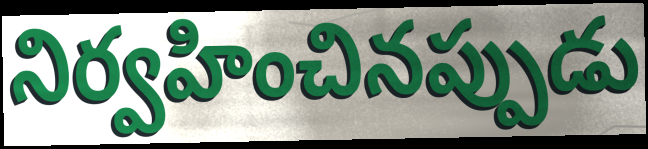
నిర్వహించినప్పుడు